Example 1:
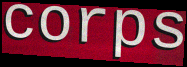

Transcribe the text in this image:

corps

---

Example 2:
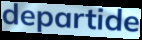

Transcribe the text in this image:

departide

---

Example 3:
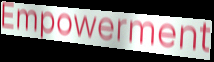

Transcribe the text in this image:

Empowerment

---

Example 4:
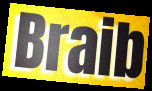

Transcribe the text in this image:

Braib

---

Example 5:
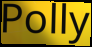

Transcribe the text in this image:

Polly